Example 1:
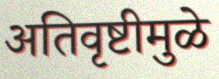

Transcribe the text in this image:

अतिवृष्टीमुळे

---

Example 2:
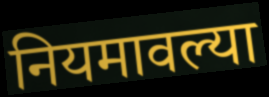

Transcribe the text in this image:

नियमावल्या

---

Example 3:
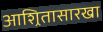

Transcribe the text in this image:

आश्रितासारखा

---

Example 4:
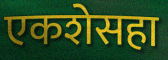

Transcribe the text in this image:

एकशेसहा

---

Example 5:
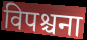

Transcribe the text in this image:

विपश्चना